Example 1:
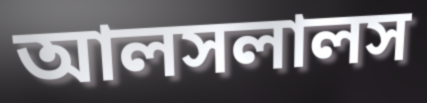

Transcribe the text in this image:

আলসলালস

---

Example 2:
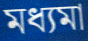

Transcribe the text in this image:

মধ্যমা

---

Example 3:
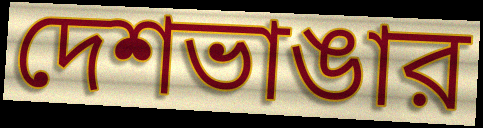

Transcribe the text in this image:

দেশভাঙার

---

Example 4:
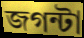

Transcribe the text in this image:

জগন্টা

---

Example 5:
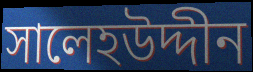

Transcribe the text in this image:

সালেহউদ্দীন